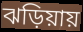
ঝড়িয়ায়